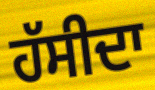
ਹੱਸੀਦਾ